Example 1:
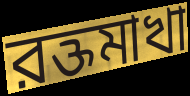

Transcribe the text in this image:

রক্তমাখা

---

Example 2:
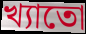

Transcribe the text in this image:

খ্যাতো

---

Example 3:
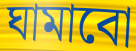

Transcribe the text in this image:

ঘামাবো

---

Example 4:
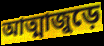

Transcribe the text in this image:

আত্মাজুড়ে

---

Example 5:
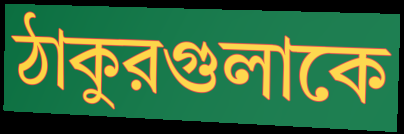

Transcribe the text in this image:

ঠাকুরগুলাকে